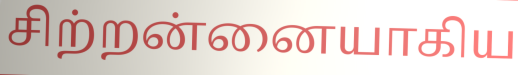
சிற்றன்னையாகிய